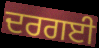
ਦਰਗਈ